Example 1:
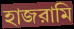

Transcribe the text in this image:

হাজরামি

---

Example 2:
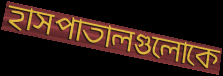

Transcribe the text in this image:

হাসপাতালগুলোকে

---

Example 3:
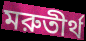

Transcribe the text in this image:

মরুতীর্থ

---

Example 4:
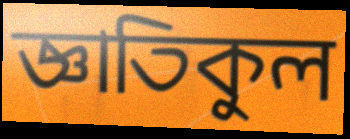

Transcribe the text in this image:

জ্ঞাতিকুল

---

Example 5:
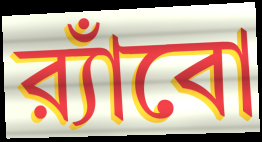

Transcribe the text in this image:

র‍্যাঁবো